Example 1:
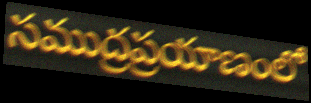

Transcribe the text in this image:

సముద్రప్రయాణంలో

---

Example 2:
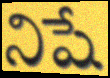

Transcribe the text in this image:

నిషే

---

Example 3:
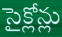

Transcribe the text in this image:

సైక్లోన్లు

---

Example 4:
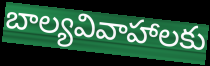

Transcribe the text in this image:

బాల్యవివాహాలకు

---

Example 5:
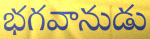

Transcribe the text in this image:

భగవానుడు